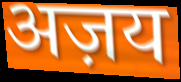
अज़य